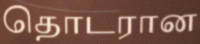
தொடரான